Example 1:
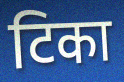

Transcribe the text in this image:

टिका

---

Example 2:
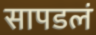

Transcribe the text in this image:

सापडलं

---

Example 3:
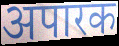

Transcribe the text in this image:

अपारक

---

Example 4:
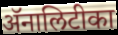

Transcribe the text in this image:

ॲनालिटीका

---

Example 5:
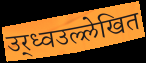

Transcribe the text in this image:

उर्ध्वउल्लेखित